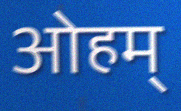
ओहम्